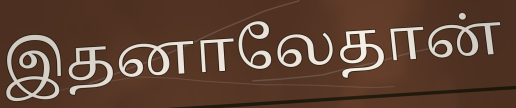
இதனாலேதான்